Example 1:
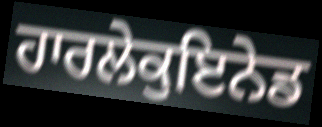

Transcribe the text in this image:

ਹਾਰਲੇਕੁਇਨੇਡ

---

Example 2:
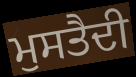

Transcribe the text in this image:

ਮੁਸਤੈਦੀ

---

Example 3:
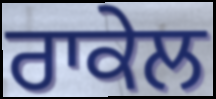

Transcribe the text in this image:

ਰਾਕੇਲ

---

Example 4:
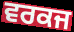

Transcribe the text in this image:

ਵਰਕਜ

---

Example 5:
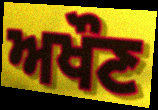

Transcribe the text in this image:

ਅਖੌਣ